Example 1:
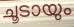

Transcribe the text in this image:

ചൂടായും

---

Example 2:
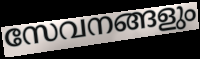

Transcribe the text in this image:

സേവനങ്ങളും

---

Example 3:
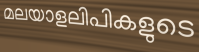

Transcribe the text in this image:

മലയാളലിപികളുടെ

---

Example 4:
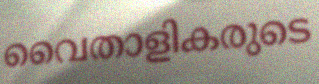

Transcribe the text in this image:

വൈതാളികരുടെ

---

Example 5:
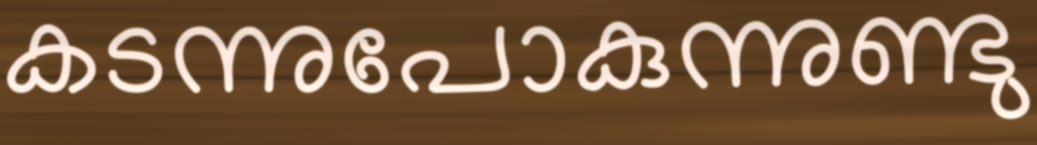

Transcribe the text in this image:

കടന്നുപോകുന്നുണ്ടു